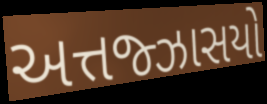
અત્તજ્ઝાસયો